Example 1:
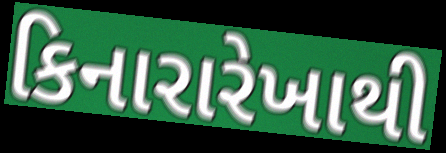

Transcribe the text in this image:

કિનારારેખાથી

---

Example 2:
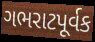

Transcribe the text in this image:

ગભરાટપૂર્વક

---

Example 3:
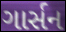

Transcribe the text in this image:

ગાર્સન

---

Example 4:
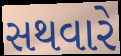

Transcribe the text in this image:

સથવારે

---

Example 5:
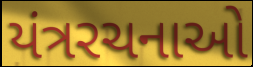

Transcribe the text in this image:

યંત્રરચનાઓ